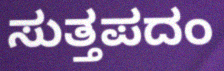
ಸುತ್ತಪದಂ